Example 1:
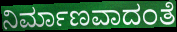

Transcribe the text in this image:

ನಿರ್ಮಾಣವಾದಂತೆ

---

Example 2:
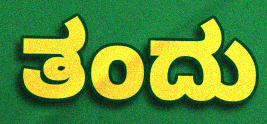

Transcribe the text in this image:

ತಂದು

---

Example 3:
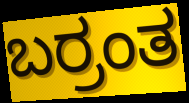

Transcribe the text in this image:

ಬರ್ರಂತ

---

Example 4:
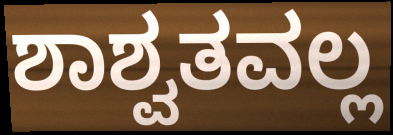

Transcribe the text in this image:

ಶಾಶ್ವತವಲ್ಲ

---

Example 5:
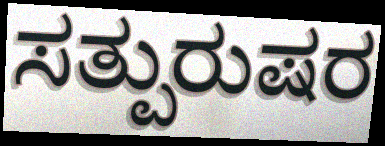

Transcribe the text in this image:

ಸತ್ಪುರುಷರ